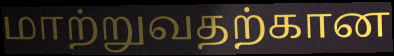
மாற்றுவதற்கான